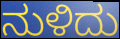
ನುಳಿದು